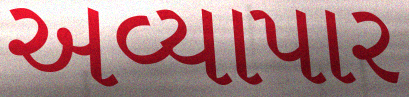
અવ્યાપાર